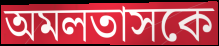
অমলতাসকে